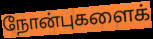
நோன்புகளைக்